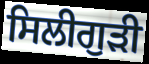
ਸਿਲੀਗੁੜੀ